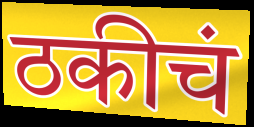
ठकीचं